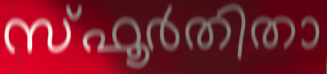
സ്ഫൂർതിതാ